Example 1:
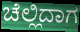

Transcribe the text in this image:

ಚೆಲ್ಲಿದಾಗ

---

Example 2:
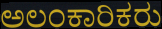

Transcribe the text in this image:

ಅಲಂಕಾರಿಕರು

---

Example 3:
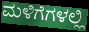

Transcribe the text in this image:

ಮಳಿಗೆಗಳಲ್ಲಿ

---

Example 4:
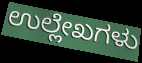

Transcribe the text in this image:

ಉಲ್ಲೇಖಗಳು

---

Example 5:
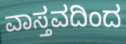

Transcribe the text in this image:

ವಾಸ್ತವದಿಂದ